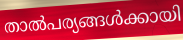
താൽപര്യങ്ങൾക്കായി